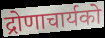
द्रोणाचार्यको